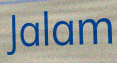
Jalam